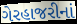
ગેરહાજરીનાં